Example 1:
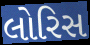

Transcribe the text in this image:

લોરિસ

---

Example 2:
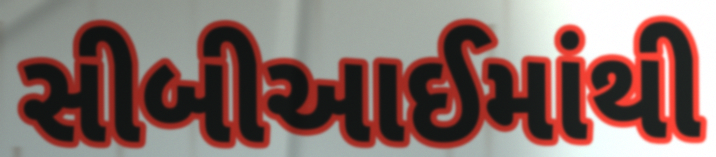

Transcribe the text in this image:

સીબીઆઈમાંથી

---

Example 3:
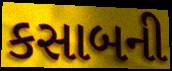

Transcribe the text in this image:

કસાબની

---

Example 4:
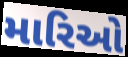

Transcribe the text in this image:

મારિઓ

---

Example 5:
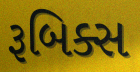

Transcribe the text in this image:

રૂબિક્સ